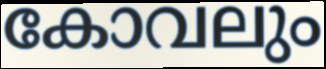
കോവലും